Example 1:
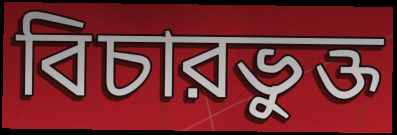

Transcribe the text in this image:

বিচারভুক্ত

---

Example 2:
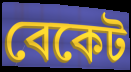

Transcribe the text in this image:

বেকেট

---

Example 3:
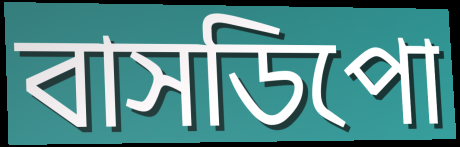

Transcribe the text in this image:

বাসডিপো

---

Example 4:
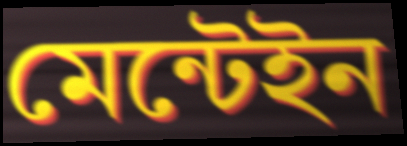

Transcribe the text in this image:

মেন্টেইন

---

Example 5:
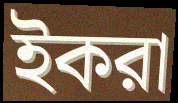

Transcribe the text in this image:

ইকরা